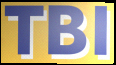
TBI